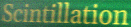
Scintillation